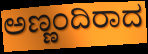
ಅಣ್ಣಂದಿರಾದ